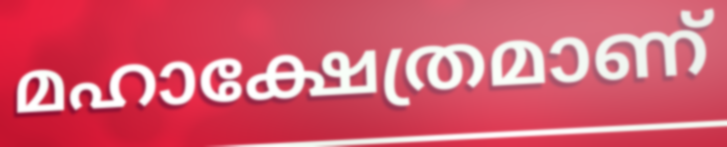
മഹാക്ഷേത്രമാണ്